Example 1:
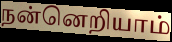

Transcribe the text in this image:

நன்னெறியாம்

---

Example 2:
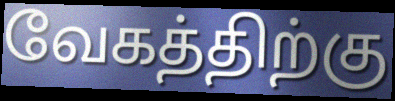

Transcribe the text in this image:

வேகத்திற்கு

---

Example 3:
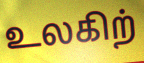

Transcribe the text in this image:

உலகிற்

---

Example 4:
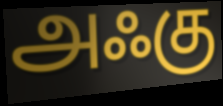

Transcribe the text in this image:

அஃகு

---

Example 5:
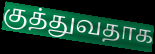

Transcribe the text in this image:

குத்துவதாக